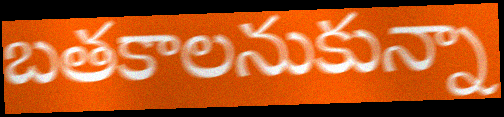
బతకాలనుకున్నా